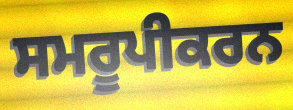
ਸਮਰੂਪੀਕਰਨ